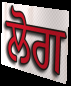
ਲੋਗ